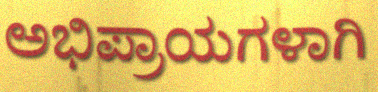
ಅಭಿಪ್ರಾಯಗಳಾಗಿ